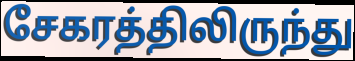
சேகரத்திலிருந்து